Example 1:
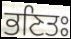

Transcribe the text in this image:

ਭਣਿਤਃ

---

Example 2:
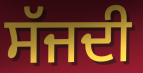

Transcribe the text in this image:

ਸੱਜਦੀ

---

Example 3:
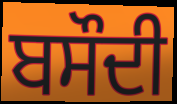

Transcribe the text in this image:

ਬਸੌਦੀ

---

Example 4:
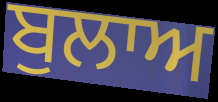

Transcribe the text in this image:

ਬੁਲਾਅ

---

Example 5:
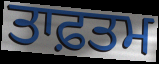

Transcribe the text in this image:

ਤਾਫ਼ਤਮ